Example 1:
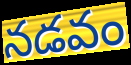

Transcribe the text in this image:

నడవం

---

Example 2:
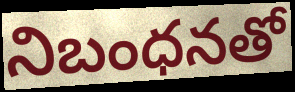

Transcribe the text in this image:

నిబంధనతో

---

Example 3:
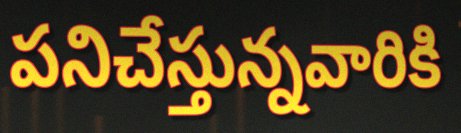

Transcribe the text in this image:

పనిచేస్తున్నవారికి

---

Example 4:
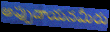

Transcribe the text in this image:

అప్పుడాయనమీరు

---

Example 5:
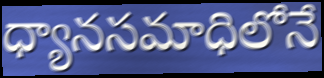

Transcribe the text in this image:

ధ్యానసమాధిలోనే